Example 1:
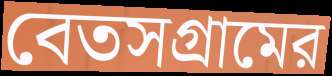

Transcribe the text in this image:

বেতসগ্রামের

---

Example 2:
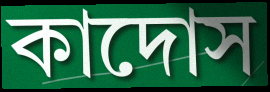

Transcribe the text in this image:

কাদোস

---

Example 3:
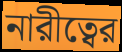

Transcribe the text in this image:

নারীত্বের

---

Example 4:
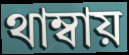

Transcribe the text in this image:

থাম্বায়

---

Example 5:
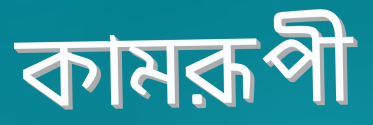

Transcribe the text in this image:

কামরূপী